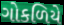
ગોકળિયે